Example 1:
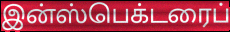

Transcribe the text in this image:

இன்ஸ்பெக்டரைப்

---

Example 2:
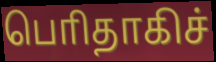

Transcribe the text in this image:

பெரிதாகிச்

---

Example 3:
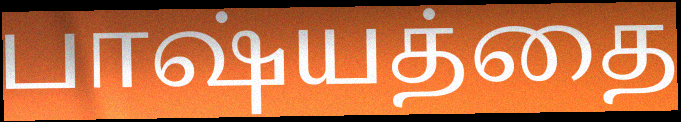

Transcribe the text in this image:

பாஷ்யத்தை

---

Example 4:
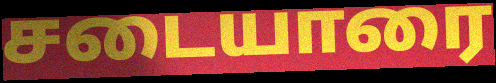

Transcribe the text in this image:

சடையாரை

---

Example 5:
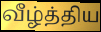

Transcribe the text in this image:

வீழ்த்திய